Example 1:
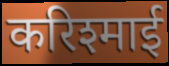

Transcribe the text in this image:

करिश्माई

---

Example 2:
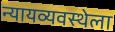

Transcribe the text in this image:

न्यायव्यवस्थेला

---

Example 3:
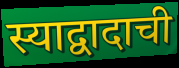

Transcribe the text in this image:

स्याद्वादाची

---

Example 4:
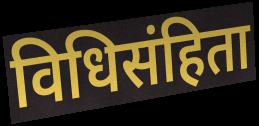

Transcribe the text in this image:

विधिसंहिता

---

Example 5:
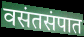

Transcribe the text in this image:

वसंतसंपात